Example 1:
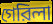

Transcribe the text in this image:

গেরিলা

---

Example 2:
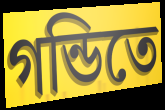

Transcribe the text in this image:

গন্ডিতে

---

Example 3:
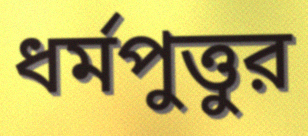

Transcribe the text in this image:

ধর্মপুত্তুর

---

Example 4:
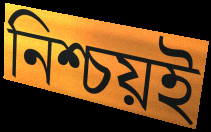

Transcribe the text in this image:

নিশ্চয়ই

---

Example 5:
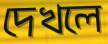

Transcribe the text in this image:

দেখলে